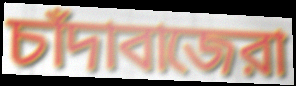
চাঁদাবাজেরা